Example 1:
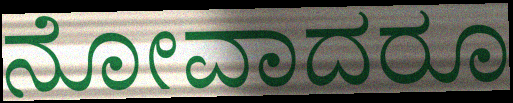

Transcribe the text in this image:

ನೋವಾದರೂ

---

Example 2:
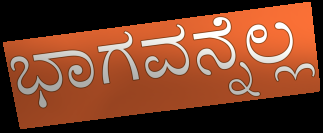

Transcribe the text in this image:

ಭಾಗವನ್ನೆಲ್ಲ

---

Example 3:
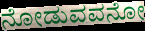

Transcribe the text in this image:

ನೋಡುವವನೋ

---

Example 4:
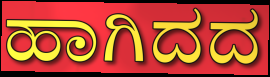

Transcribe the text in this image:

ಹಾಗಿದದ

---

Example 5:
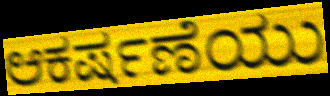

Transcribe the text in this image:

ಆಕರ್ಷಣೆಯು